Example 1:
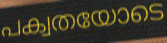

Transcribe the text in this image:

പക്വതയോടെ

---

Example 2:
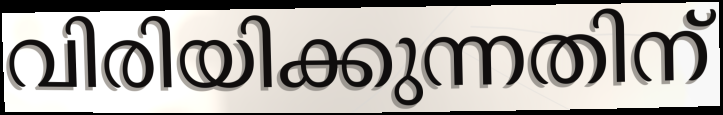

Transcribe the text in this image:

വിരിയിക്കുന്നതിന്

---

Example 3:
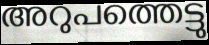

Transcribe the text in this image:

അറുപത്തെട്ടു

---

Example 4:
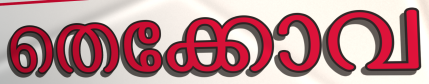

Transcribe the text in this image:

തെക്കോവ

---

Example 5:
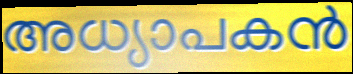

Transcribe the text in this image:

അധ്യാപകൻ